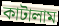
কাটালাম